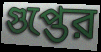
গুপ্তের